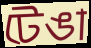
টেঙা